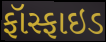
ફૉસ્ફાઇડ